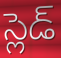
స్లెడ్